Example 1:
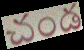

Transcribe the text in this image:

చండ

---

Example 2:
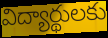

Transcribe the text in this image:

విద్యార్థులకు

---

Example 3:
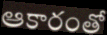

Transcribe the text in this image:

ఆకారంతో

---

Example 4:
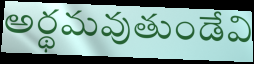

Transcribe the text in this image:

అర్థమవుతుండేవి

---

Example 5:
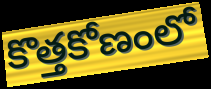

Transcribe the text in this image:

కొత్తకోణంలో